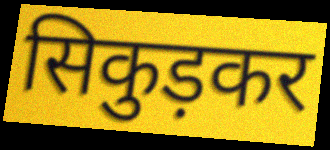
सिकुड़कर